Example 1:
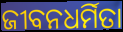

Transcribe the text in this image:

ଜୀବନଧର୍ମିତା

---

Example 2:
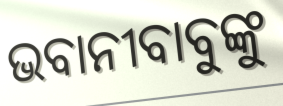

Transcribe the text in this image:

ଭବାନୀବାବୁଙ୍କୁ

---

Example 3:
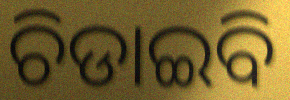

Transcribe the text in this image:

ଚିଡାଇବି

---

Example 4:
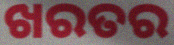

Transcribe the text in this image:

ଖରତର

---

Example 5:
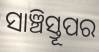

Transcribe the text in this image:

ସାଞ୍ଚିସ୍ତୂପର